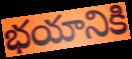
భయానికి